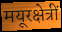
मयूरक्षेत्रीं